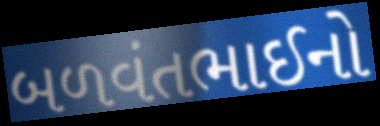
બળવંતભાઈનો